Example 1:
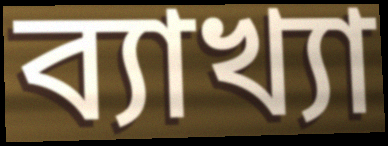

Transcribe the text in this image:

ব্যাখ্যা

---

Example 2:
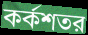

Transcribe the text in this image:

কর্কশতর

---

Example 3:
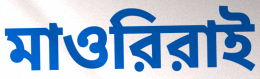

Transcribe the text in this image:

মাওরিরাই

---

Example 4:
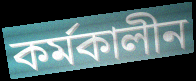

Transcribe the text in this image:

কর্মকালীন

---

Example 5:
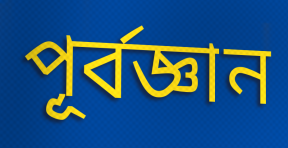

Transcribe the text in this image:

পূর্বজ্ঞান